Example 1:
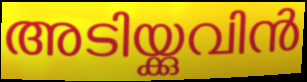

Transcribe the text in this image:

അടിയ്ക്കുവിൻ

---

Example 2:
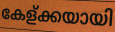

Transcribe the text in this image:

കേള്ക്കയായി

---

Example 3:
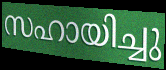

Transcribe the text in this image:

സഹായിച്ചു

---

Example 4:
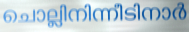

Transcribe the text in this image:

ചൊല്ലിനിന്നീടിനാർ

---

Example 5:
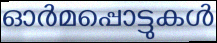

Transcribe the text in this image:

ഓർമപ്പൊട്ടുകൾ